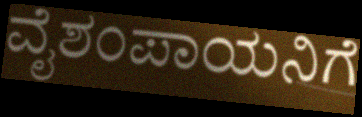
ವೈಶಂಪಾಯನಿಗೆ